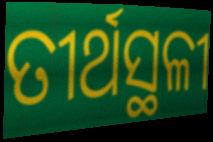
ତୀର୍ଥସ୍ଥଳୀ